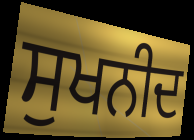
ਸੁਖਨੀਦ